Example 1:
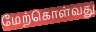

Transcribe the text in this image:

மேற்கொள்வது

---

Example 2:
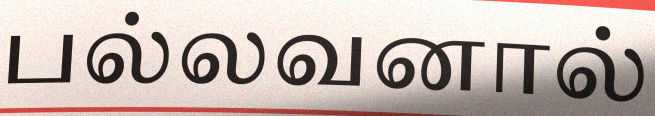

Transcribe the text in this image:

பல்லவனால்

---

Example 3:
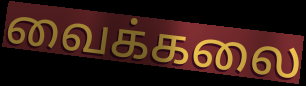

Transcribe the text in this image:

வைக்கலை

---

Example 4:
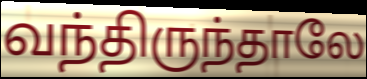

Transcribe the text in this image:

வந்திருந்தாலே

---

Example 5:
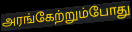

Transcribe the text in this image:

அரங்கேற்றும்போது